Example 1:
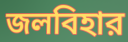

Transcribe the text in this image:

জলবিহার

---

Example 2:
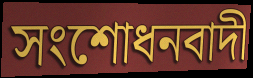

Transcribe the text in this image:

সংশোধনবাদী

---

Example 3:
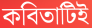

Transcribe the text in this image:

কবিতাটিই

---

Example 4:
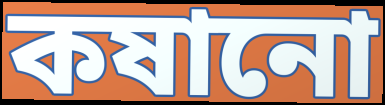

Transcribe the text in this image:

কষানো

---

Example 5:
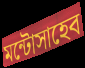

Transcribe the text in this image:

মন্টোসাহেব